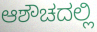
ಆಶೌಚದಲ್ಲಿ